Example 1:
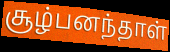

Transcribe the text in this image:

சூழ்பனந்தாள்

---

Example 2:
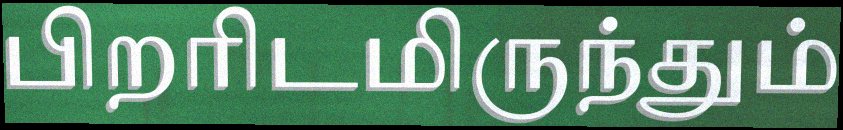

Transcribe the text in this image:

பிறரிடமிருந்தும்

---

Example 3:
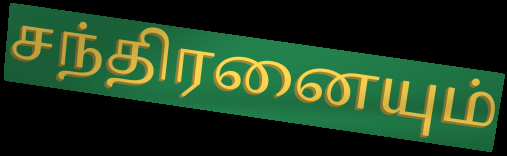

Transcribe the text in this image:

சந்திரனையும்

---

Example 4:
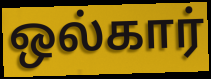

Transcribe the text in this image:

ஒல்கார்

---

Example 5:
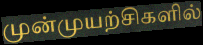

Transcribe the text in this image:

முன்முயற்சிகளில்